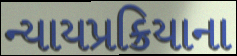
ન્યાયપ્રક્રિયાના